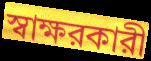
স্বাক্ষরকারী